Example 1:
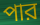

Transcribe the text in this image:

পার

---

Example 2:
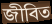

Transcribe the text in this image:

জীবিত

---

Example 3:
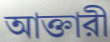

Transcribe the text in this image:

আক্তারী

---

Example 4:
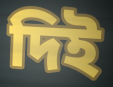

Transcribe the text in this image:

দিই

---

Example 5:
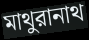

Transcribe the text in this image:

মাথুরানাথ